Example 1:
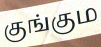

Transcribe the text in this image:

குங்கும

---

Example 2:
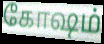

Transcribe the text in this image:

கோஷம்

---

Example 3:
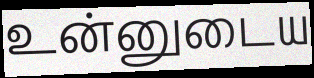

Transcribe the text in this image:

உன்னுடைய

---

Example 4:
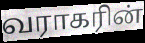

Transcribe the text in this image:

வராகரின்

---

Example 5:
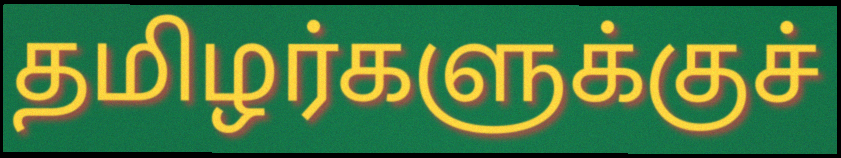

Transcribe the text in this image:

தமிழர்களுக்குச்